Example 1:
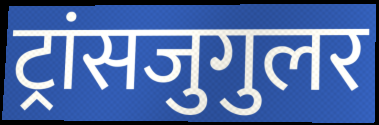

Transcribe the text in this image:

ट्रांसजुगुलर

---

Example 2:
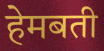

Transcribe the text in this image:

हेमबती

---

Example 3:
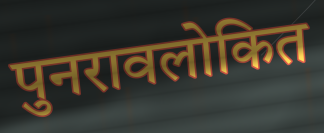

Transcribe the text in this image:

पुनरावलोकित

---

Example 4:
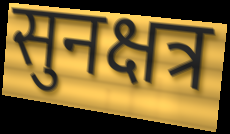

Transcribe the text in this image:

सुनक्षत्र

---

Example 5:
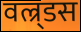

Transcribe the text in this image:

वल्र्डस